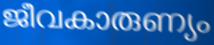
ജീവകാരുണ്യം